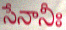
సేనానీః